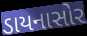
ડાયનાસોર